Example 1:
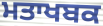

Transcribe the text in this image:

ਮਤਾਖਬਕ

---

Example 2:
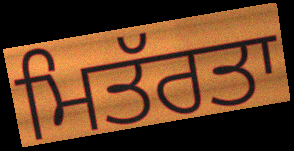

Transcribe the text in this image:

ਮਿਤੱਰਤਾ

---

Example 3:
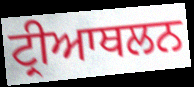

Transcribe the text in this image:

ਟ੍ਰੀਆਥਲਨ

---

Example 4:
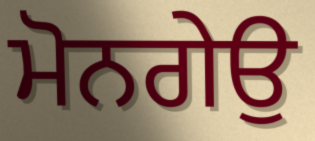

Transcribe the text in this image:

ਮੋਨਗੇਉ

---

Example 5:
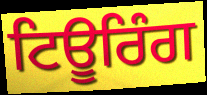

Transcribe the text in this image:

ਟਿਊਰਿੰਗ